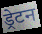
ड्रेटन